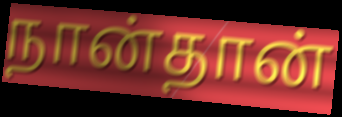
நான்தான்